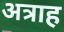
अत्राह